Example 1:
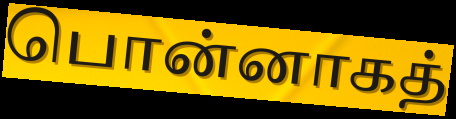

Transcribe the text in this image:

பொன்னாகத்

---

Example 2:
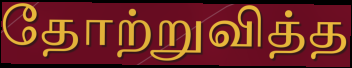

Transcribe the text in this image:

தோற்றுவித்த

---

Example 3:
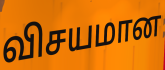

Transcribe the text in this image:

விசயமான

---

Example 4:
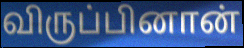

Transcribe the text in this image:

விருப்பினான்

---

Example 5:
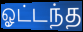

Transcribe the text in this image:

ஓட்டந்த